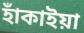
হাঁকাইয়া